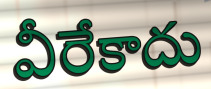
వీరేకాదు